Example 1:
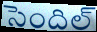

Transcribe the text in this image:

సెందిల్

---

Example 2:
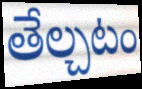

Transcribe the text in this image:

తేల్చటం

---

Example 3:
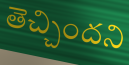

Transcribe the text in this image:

తెచ్చిందని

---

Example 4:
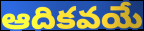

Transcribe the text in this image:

ఆదికవయే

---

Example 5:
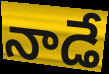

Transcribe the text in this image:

నాడే